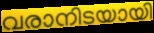
വരാനിടയായി